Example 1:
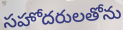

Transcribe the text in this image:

సహోదరులతోను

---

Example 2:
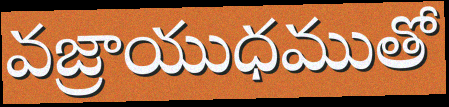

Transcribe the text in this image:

వజ్రాయుధముతో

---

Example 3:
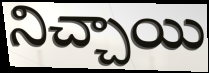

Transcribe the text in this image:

నిచ్చాయి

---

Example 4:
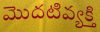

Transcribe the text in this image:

మొదటివ్యక్తి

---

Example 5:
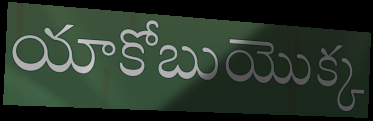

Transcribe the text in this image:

యాకోబుయొక్క